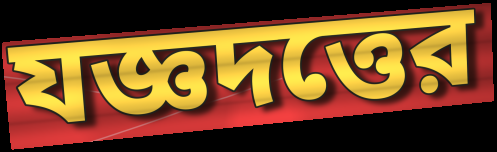
যজ্ঞদত্তের